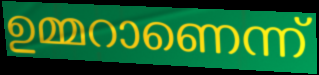
ഉമ്മറാണെന്ന്